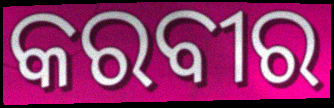
କରବୀର